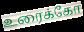
உரைக்கோ